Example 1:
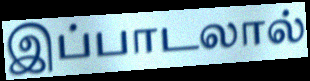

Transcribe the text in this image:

இப்பாடலால்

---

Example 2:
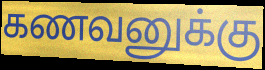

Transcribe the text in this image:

கணவனுக்கு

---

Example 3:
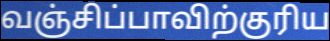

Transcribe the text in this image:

வஞ்சிப்பாவிற்குரிய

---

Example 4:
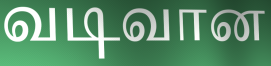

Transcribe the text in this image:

வடிவான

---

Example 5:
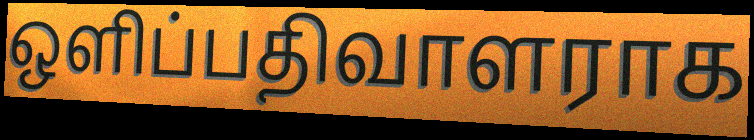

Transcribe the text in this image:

ஒளிப்பதிவாளராக